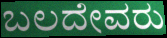
ಬಲದೇವರು